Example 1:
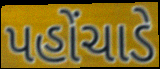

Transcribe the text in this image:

પહોંચાડે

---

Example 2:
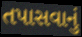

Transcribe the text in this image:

તપાસવાનું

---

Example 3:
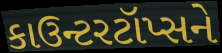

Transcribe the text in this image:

કાઉન્ટરટૉપ્સને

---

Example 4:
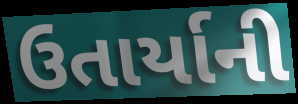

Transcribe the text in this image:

ઉતાર્યાની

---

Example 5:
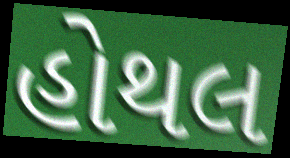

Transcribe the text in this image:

હોથલ